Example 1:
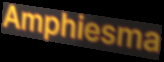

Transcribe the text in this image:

Amphiesma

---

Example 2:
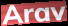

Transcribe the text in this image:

Arav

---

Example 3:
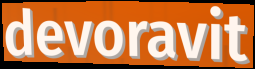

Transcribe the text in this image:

devoravit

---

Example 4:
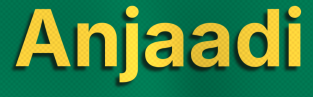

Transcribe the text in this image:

Anjaadi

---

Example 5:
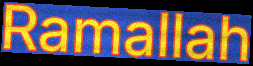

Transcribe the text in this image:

Ramallah